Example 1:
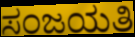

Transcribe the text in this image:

ಸಂಜಯತಿ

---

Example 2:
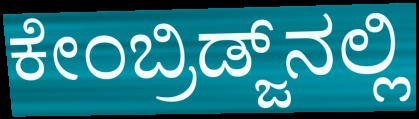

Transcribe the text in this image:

ಕೇಂಬ್ರಿಡ್ಜ್‌ನಲ್ಲಿ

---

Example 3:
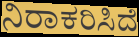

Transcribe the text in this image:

ನಿರಾಕರಿಸಿದೆ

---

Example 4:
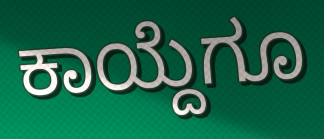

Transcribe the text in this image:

ಕಾಯ್ದೆಗೂ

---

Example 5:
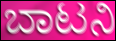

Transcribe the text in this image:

ಬಾಟನಿ